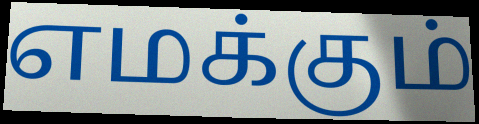
எமக்கும்